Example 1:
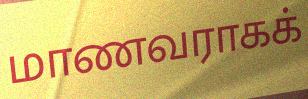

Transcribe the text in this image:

மாணவராகக்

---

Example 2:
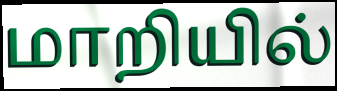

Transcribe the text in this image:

மாறியில்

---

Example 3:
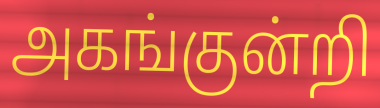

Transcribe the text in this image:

அகங்குன்றி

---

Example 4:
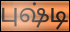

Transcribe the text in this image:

புஷ்டி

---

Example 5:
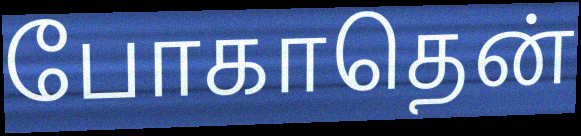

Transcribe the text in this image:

போகாதென்